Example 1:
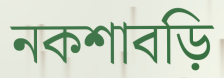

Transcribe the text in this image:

নকশাবড়ি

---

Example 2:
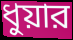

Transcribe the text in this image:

ধুয়ার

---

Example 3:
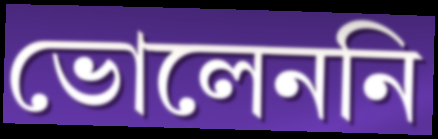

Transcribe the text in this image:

ভোলেননি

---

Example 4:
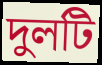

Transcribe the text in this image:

দুলটি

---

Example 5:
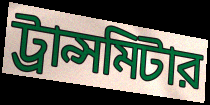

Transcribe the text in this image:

ট্রান্সমিটার